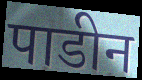
पाडीन